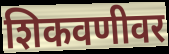
शिकवणीवर